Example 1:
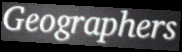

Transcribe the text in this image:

Geographers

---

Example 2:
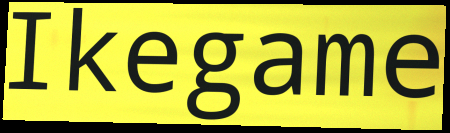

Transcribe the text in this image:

Ikegame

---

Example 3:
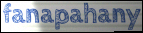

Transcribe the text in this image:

fanapahany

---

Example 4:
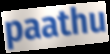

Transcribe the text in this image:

paathu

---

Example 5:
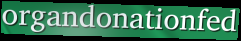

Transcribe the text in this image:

organdonationfed